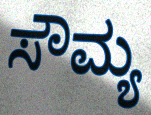
ಸೌಮ್ಯ